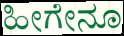
ಹೀಗೇನೂ